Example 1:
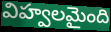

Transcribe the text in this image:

విహ్వలమైంది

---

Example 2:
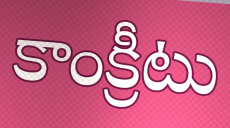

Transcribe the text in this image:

కాంక్రీటు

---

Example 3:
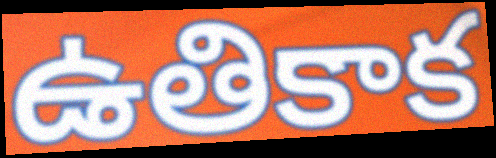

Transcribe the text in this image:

ఉతికాక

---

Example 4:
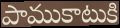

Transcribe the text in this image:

పాముకాటుకి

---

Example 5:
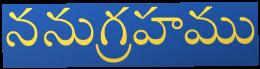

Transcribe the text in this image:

ననుగ్రహము